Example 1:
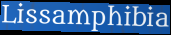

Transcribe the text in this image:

Lissamphibia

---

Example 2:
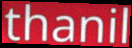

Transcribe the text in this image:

thanil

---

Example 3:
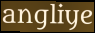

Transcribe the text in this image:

angliye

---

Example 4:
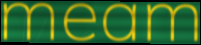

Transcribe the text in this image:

meam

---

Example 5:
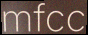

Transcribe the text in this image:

mfcc